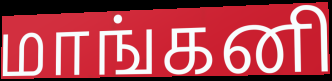
மாங்கனி